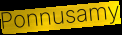
Ponnusamy